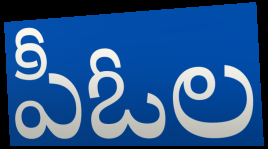
పీఓల